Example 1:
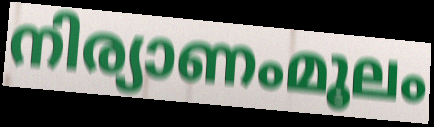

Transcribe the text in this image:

നിര്യാണംമൂലം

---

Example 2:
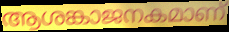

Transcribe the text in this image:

ആശങ്കാജനകമാണ്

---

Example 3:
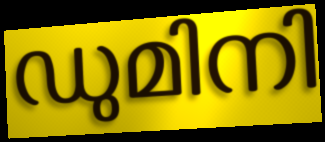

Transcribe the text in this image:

ഡുമിനി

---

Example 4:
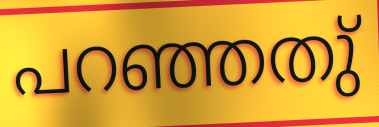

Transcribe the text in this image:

പറഞ്ഞതു്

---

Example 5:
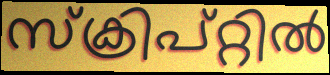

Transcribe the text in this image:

സ്ക്രിപ്റ്റിൽ